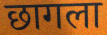
छागला